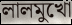
লালমুখো